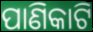
ପାଣିକାଟି